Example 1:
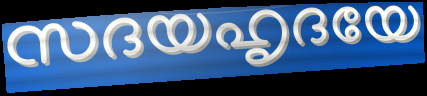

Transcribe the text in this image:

സദയഹൃദയേ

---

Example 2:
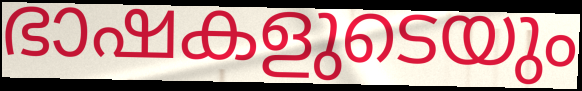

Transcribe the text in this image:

ഭാഷകളുടെയും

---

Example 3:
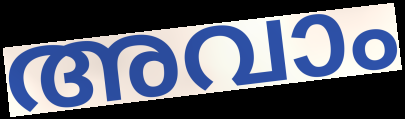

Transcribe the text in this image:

അവാം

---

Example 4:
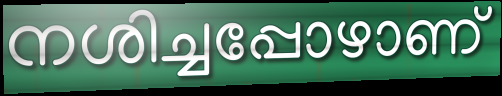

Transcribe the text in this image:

നശിച്ചപ്പോഴാണ്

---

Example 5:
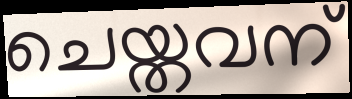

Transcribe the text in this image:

ചെയ്തവന്